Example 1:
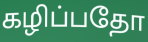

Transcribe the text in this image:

கழிப்பதோ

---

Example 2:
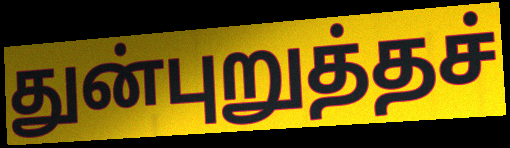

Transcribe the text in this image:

துன்புறுத்தச்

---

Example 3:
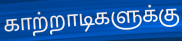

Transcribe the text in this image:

காற்றாடிகளுக்கு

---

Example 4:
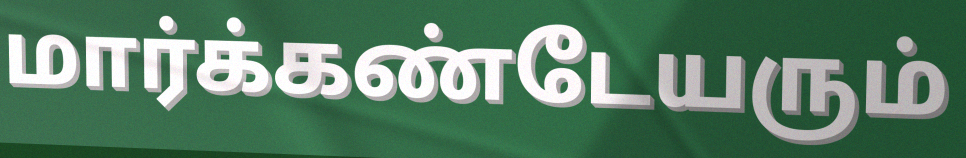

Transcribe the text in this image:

மார்க்கண்டேயரும்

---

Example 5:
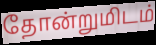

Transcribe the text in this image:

தோன்றுமிடம்